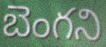
బెంగని